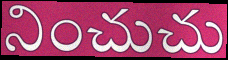
నించుచు